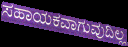
ಸಹಾಯಕವಾಗುವುದಿಲ್ಲ